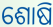
ଶୋଷି